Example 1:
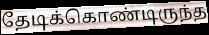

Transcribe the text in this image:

தேடிக்கொண்டிருந்த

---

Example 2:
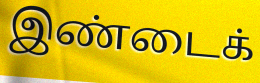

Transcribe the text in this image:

இண்டைக்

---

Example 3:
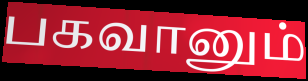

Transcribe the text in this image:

பகவானும்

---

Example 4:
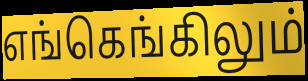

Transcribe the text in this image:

எங்கெங்கிலும்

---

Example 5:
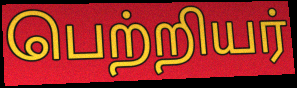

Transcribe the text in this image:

பெற்றியர்